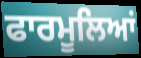
ਫਾਰਮੂਲਿਆਂ